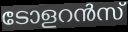
ടോളറൻസ്